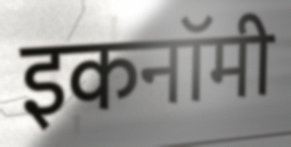
इकनॉमी